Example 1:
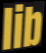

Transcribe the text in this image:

lib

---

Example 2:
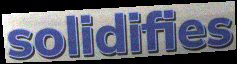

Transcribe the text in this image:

solidifies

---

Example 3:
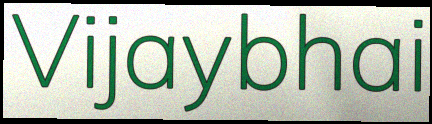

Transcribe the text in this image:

Vijaybhai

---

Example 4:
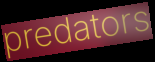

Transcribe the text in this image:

predators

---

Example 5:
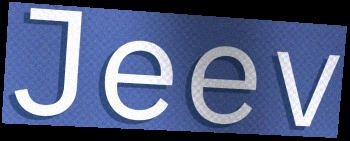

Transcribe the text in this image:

Jeev